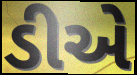
ડીએ